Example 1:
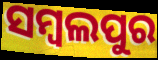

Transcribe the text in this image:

ସମ୍ବଲପୁର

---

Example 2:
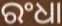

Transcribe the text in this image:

ରଂଧା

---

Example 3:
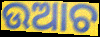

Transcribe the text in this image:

ଉଆଚ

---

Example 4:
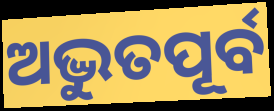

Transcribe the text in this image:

ଅଦ୍ଭୁତପୂର୍ବ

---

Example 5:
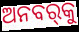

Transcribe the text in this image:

ଅନବର୍‌କୁ